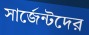
সার্জেন্টদের